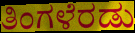
ತಿಂಗಳೆರಡು